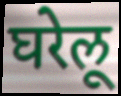
घरेलू